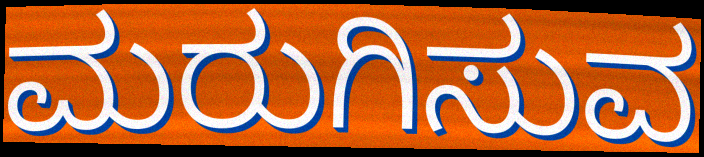
ಮರುಗಿಸುವ